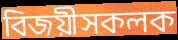
বিজয়ীসকলক